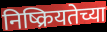
निष्क्रियतेच्या